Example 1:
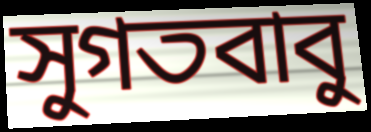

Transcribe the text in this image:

সুগতবাবু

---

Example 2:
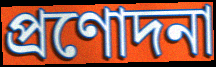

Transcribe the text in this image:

প্রণোদনা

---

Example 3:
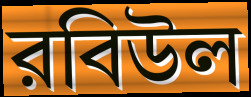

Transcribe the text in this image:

রবিউল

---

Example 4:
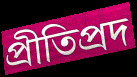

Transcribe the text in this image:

প্রীতিপ্রদ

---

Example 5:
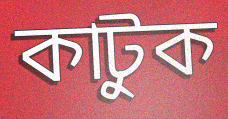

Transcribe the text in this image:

কাটুক